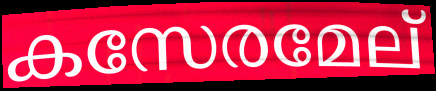
കസേരമേല്